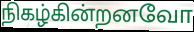
நிகழ்கின்றனவோ